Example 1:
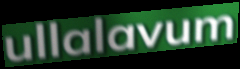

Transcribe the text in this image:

ullalavum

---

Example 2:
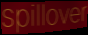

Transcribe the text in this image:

spillover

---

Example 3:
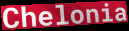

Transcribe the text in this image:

Chelonia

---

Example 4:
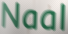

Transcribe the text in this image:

Naal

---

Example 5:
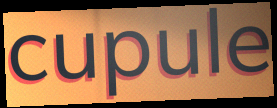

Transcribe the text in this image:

cupule